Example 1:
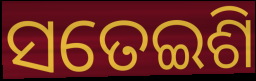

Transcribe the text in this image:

ସତେଇଶି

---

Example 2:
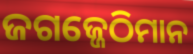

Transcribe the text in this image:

ଜଗଜ୍ଜେଠିମାନ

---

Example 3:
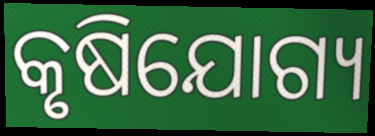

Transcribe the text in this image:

କୃଷିଯୋଗ୍ୟ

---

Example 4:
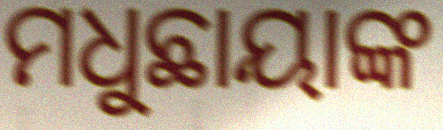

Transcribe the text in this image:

ମଧୁଛାୟାଙ୍କ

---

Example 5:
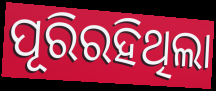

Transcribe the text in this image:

ପୂରିରହିଥିଲା